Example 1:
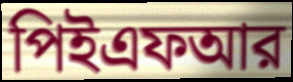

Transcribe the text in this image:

পিইএফআর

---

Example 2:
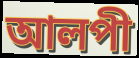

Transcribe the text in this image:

আলপী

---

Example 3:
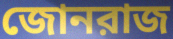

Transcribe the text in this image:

জোনরাজ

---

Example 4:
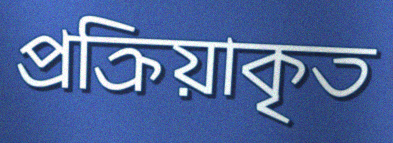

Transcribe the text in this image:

প্রক্রিয়াকৃত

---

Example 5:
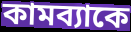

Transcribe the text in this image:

কামব্যাকে